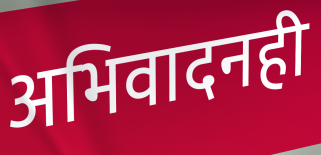
अभिवादनही